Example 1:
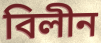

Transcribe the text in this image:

বিলীন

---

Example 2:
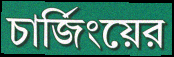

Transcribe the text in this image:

চার্জিংয়ের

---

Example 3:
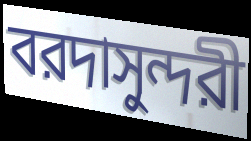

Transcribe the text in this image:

বরদাসুন্দরী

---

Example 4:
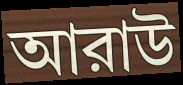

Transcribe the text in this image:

আরাউ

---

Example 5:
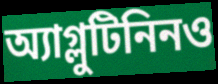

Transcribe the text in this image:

অ্যাগ্লুটিনিনও